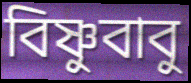
বিষ্ণুবাবু